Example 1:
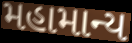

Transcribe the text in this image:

મહામાન્ય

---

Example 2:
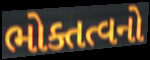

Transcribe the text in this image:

ભોક્તત્વનો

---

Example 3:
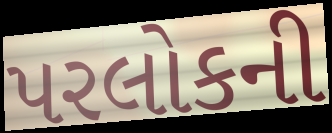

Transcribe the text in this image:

પરલોકની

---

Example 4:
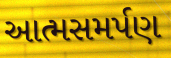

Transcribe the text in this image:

આત્મસમર્પણ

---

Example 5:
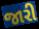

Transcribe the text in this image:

જારી